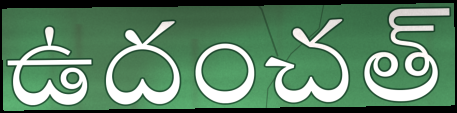
ఉదంచత్